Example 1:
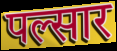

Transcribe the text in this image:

पल्सार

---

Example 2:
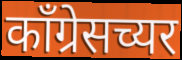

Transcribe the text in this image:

काँग्रेसच्यर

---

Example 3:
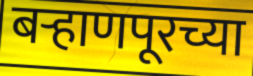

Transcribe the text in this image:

बऱ्हाणपूरच्या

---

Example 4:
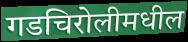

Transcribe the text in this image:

गडचिरोलीमधील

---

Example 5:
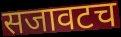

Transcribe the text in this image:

सजावटच